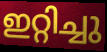
ഇറ്റിച്ചു